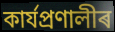
কাৰ্যপ্ৰণালীৰ